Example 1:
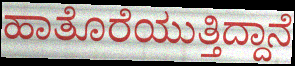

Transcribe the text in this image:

ಹಾತೊರೆಯುತ್ತಿದ್ದಾನೆ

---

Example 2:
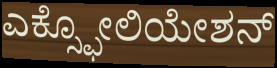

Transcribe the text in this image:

ಎಕ್ಸ್ಫೋಲಿಯೇಶನ್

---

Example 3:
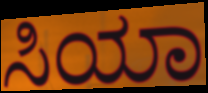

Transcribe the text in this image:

ಸಿಯಾ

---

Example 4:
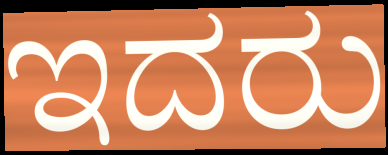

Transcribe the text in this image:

ಇದರು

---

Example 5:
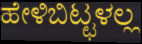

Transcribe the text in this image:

ಹೇಳಿಬಿಟ್ಟಳಲ್ಲ